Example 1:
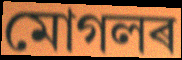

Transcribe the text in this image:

মোগলৰ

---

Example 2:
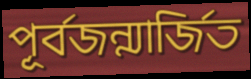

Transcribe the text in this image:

পূৰ্বজন্মাৰ্জিত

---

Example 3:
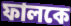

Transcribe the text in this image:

ফালকে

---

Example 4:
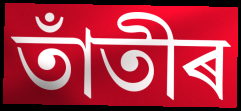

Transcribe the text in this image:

তাঁতীৰ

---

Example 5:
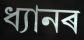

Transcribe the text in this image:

ধ্যানৰ